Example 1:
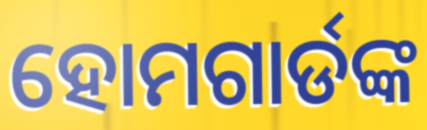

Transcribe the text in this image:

ହୋମଗାର୍ଡଙ୍କ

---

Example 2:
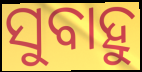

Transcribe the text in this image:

ସୁବାହୁ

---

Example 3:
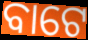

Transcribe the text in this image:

ବାଟେ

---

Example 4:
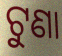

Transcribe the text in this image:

ଟୁଣା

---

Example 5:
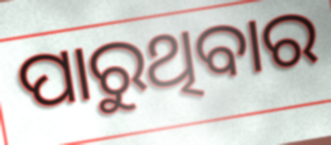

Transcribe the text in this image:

ପାରୁଥିବାର